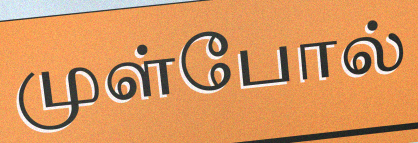
முள்போல்